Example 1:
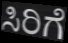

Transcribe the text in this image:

ಸಿರಿಗೆ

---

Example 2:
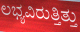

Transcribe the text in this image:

ಲಭ್ಯವಿರುತ್ತಿತ್ತು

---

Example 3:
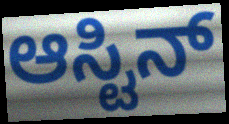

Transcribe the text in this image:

ಆಸ್ಟಿನ್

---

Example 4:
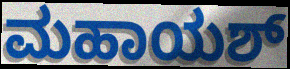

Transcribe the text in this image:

ಮಹಾಯಶ್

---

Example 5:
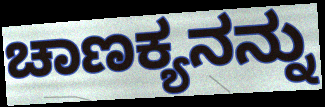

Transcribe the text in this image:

ಚಾಣಕ್ಯನನ್ನು